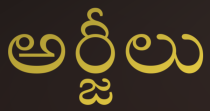
అర్జీలు